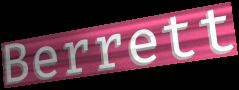
Berrett